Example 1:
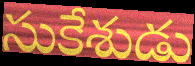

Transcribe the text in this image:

సుకేశుడు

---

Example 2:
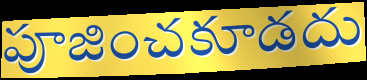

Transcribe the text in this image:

పూజించకూడదు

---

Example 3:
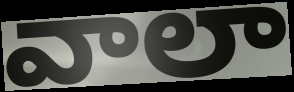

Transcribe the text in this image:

వాలా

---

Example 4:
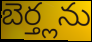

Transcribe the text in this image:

బెర్త్లను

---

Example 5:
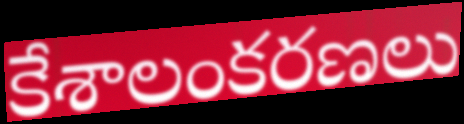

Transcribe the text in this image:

కేశాలంకరణలు